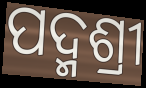
ପଦ୍ମଶ୍ରୀ